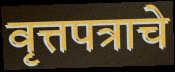
वृत्तपत्राचे